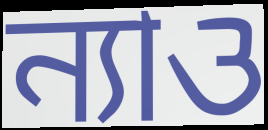
ন্যাও